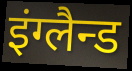
इंग्लैन्ड